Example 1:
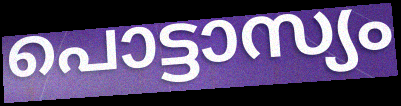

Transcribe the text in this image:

പൊട്ടാസ്യം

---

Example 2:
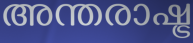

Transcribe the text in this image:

അന്തരാഷ്ട്ര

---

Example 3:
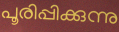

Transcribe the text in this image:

പൂരിപ്പിക്കുന്നു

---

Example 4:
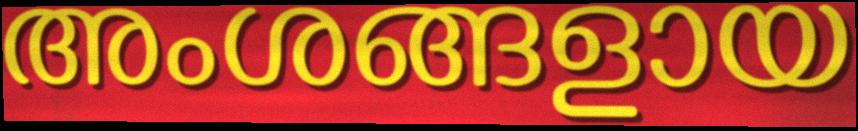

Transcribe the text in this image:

അംശങ്ങളായ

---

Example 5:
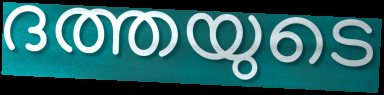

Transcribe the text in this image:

ദത്തയുടെ